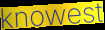
knowest